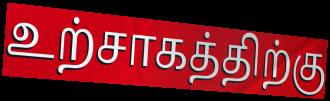
உற்சாகத்திற்கு